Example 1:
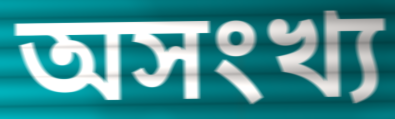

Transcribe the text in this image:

অসংখ্য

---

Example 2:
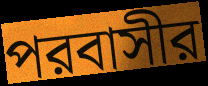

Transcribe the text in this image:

পরবাসীর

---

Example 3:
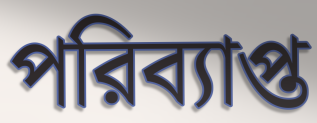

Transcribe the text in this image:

পরিব্যাপ্ত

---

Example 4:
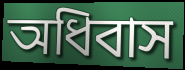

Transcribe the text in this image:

অধিবাস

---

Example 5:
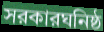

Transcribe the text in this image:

সরকারঘনিষ্ঠ